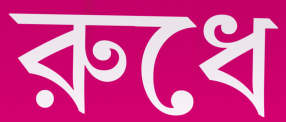
রুধে